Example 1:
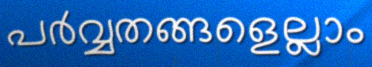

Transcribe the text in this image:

പർവ്വതങ്ങളെല്ലാം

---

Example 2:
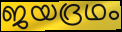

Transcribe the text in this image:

ജയദ്രഥം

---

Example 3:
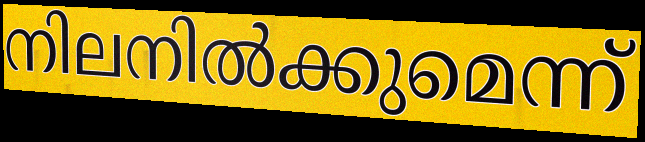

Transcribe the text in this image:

നിലനിൽക്കുമെന്ന്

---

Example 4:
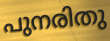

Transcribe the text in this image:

പുനരിതു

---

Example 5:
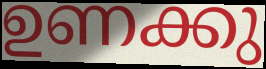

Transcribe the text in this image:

ഉണക്കു